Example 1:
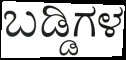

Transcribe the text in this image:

ಬಡ್ಡಿಗಳ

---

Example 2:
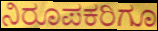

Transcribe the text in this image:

ನಿರೂಪಕರಿಗೂ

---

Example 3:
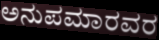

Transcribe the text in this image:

ಅನುಪಮಾರವರ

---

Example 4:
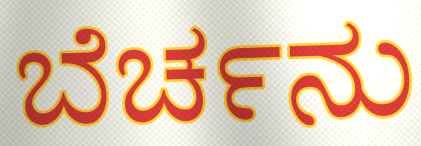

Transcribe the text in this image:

ಬೆರ್ಚನು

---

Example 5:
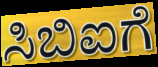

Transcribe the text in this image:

ಸಿಬಿಐಗೆ